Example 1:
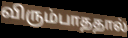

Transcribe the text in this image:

விரும்பாததால்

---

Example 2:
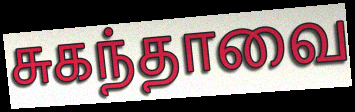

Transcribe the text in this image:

சுகந்தாவை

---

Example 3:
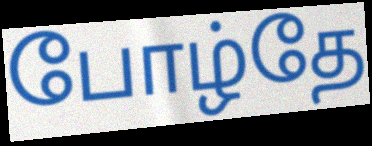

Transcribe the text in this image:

போழ்தே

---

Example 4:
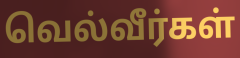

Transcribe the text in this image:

வெல்வீர்கள்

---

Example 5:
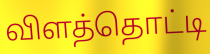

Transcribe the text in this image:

விளத்தொட்டி